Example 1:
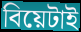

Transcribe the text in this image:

বিয়েটাই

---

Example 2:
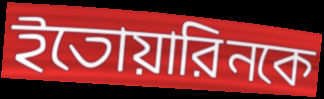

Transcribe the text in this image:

ইতোয়ারিনকে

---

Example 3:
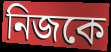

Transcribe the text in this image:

নিজকে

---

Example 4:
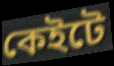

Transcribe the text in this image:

কেইটে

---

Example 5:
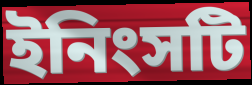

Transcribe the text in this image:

ইনিংসটি